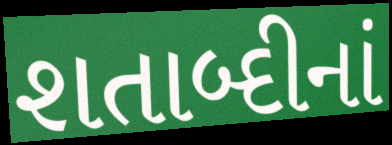
શતાબ્દીનાં